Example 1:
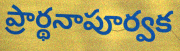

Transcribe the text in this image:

ప్రార్థనాపూర్వక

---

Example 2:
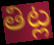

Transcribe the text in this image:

తిట్ల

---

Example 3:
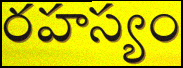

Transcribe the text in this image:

రహస్యం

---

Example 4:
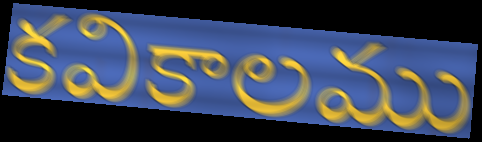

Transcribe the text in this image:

కవికాలము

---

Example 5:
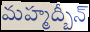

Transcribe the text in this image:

మహ్మద్బీన్